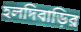
হলদিবাড়ির